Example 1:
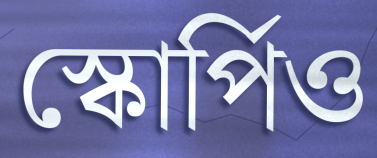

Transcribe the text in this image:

স্কোর্পিও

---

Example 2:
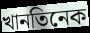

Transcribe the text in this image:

খানতিনেক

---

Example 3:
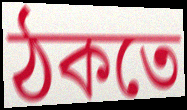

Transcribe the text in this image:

ঠকতে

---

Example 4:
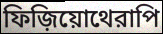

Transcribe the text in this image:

ফিজ়িয়োথেরাপি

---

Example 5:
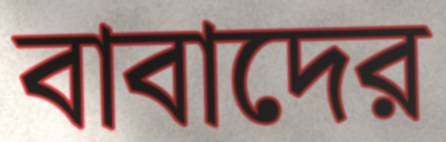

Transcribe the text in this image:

বাবাদের